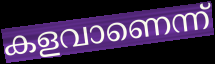
കളവാണെന്ന്